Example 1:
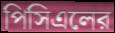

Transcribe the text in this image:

পিসিএলের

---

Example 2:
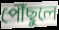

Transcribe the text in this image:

পৌঁছুলে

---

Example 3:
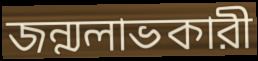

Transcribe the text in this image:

জন্মলাভকারী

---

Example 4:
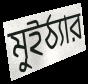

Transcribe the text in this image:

মুইঠ্যার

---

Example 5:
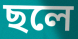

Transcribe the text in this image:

ছলে